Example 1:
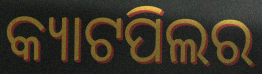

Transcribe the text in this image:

କ୍ୟାଟପିଲର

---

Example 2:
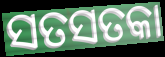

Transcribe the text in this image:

ସତସତକା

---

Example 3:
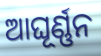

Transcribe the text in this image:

ଆଘୂର୍ଣ୍ଣନ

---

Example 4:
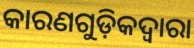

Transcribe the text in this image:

କାରଣଗୁଡ଼ିକଦ୍ବାରା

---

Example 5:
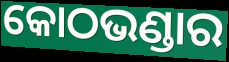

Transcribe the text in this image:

କୋଠଭଣ୍ଡାର